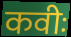
कवीः